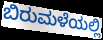
ಬಿರುಮಳೆಯಲ್ಲಿ